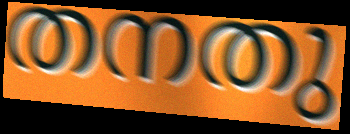
തനതു